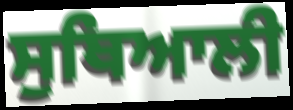
ਸੁਥਿਆਲੀ